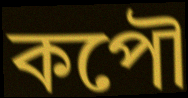
কপৌ